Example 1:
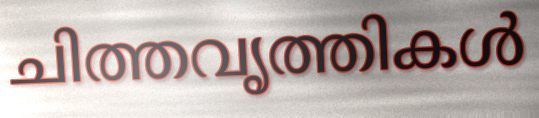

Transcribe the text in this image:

ചിത്തവൃത്തികൾ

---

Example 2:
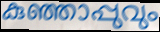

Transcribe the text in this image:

കുഞ്ഞാപ്പുവും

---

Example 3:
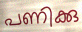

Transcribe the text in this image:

പണിക്കു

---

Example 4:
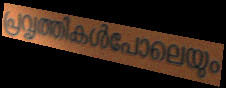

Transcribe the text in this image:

പ്രവൃത്തികൾപോലെയും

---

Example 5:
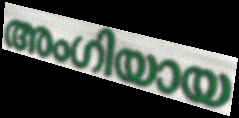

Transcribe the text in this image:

അംഗിയായ